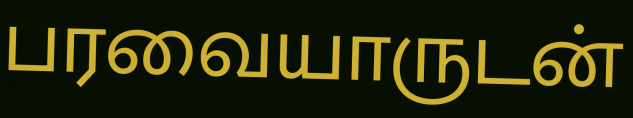
பரவையாருடன்